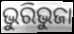
ଭୁରିଭୁଜା